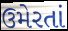
ઉમેરતાં